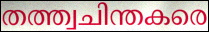
തത്ത്വചിന്തകരെ